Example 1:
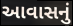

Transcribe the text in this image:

આવાસનું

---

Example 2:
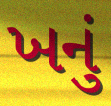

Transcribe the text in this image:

ખનું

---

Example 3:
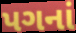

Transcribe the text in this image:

પગનાં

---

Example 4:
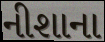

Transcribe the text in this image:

નીશાના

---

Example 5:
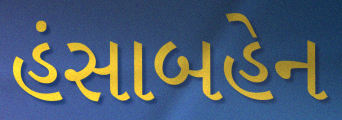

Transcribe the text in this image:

હંસાબહેન